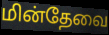
மின்தேவை